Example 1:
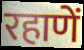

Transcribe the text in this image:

रहाणें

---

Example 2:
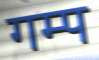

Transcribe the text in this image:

गम्प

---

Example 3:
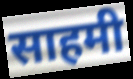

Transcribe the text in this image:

साहमी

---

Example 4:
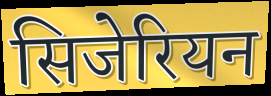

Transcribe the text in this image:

सिजेरियन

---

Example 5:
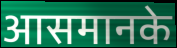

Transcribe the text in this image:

आसमानके